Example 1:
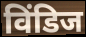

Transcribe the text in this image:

विंडिज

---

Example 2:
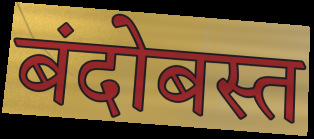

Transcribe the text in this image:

बंदोबस्त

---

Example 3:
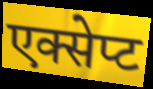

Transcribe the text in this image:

एक्सेप्ट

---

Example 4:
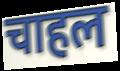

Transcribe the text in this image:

चाहल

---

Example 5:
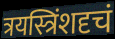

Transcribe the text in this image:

त्रयस्त्रिंशदृचं